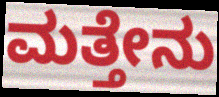
ಮತ್ತೇನು